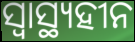
ସ୍ୱାସ୍ଥ୍ୟହୀନ